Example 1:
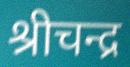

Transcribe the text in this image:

श्रीचन्द्र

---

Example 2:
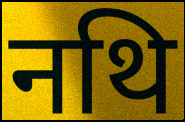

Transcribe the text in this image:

नथि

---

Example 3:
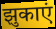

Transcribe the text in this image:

झुकाएं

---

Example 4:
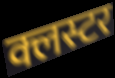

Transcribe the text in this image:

क्‍लस्‍टर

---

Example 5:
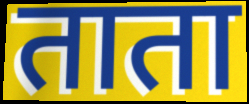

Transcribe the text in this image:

ताता